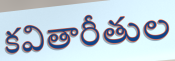
కవితారీతుల